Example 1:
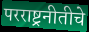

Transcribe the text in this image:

परराष्ट्रनीतीचे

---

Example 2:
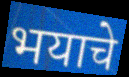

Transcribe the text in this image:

भयाचे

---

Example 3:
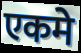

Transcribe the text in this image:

एकमे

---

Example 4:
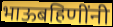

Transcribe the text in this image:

भाऊबहिणींनी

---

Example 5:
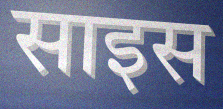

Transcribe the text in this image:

साइस